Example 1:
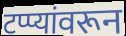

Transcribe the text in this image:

टप्प्यांवरून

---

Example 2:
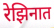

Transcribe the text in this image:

रेझिनात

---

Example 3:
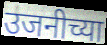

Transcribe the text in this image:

उजनीच्या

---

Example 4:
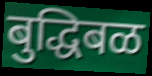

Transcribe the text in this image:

बुद्धिबळ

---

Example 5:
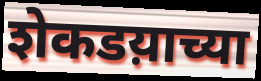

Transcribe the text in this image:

शेकडय़ाच्या